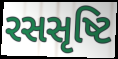
રસસૃષ્ટિ